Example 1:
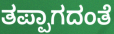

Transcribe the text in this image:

ತಪ್ಪಾಗದಂತೆ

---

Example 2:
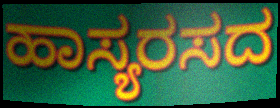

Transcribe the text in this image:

ಹಾಸ್ಯರಸದ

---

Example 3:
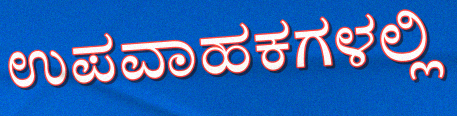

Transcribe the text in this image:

ಉಪವಾಹಕಗಳಲ್ಲಿ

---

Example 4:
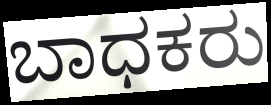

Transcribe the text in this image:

ಬಾಧಕರು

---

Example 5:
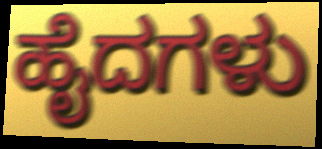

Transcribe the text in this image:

ಹೈದಗಳು